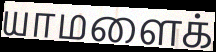
யாமளைக்